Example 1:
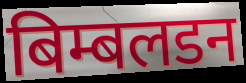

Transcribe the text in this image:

बिम्बलडन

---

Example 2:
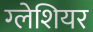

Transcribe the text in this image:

ग्‍लेशियर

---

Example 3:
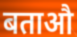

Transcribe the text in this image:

बताऔ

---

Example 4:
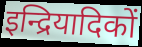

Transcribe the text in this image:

इन्द्रियादिकों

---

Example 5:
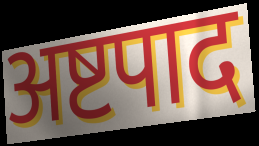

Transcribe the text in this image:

अष्टपाद